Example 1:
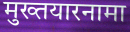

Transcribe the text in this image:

मुख्तयारनामा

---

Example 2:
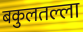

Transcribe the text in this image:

बकुलतल्ला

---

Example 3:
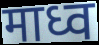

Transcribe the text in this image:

माध्व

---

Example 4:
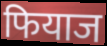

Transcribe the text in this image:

फियाज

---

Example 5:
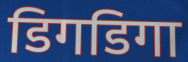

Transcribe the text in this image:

डिगडिगा